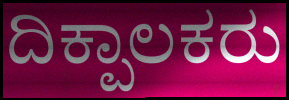
ದಿಕ್ಪಾಲಕರು